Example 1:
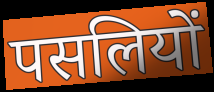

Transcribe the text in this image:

पसलियों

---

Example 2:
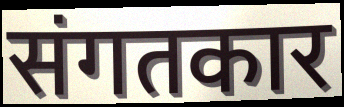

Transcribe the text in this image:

संगतकार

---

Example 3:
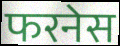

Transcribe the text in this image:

फरनेस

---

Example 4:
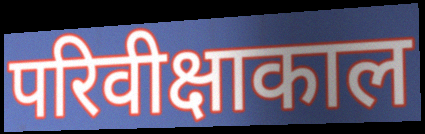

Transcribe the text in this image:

परिवीक्षाकाल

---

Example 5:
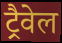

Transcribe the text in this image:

ट्रैवेल